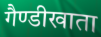
गैण्डीखाता